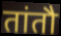
तांतौ